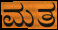
ಮತ